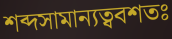
শব্দসামান্যত্ববশতঃ